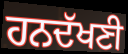
ਹਨਦੱਖਣੀ